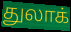
துலாக்